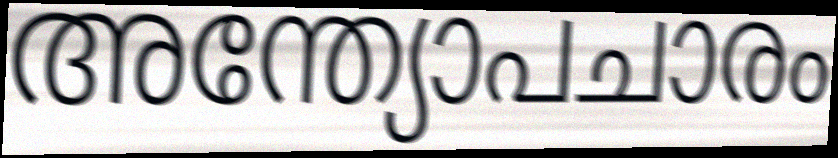
അന്ത്യോപചാരം